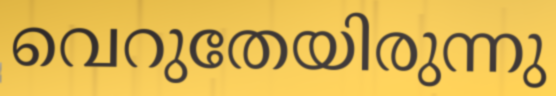
വെറുതേയിരുന്നു